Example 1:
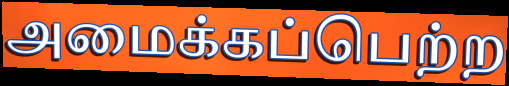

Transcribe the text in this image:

அமைக்கப்பெற்ற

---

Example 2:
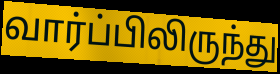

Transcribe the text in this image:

வார்ப்பிலிருந்து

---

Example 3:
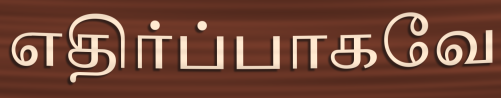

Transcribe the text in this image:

எதிர்ப்பாகவே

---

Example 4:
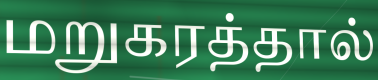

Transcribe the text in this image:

மறுகரத்தால்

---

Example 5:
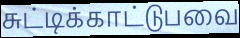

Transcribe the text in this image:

சுட்டிக்காட்டுபவை